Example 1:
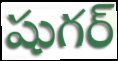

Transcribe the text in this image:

షుగర్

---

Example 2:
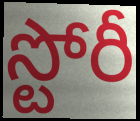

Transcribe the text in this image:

స్టోరీ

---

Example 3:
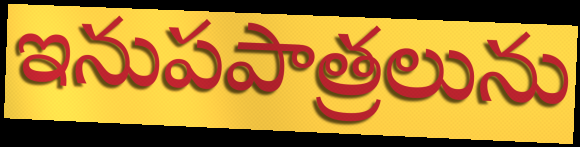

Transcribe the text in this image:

ఇనుపపాత్రలును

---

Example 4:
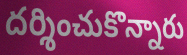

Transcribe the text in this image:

దర్శించుకొన్నారు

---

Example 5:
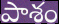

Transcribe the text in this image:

పాశం